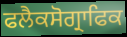
ਫਲੈਕਸੋਗ੍ਰਾਫਿਕ